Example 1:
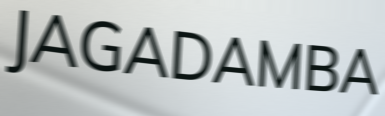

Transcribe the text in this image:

JAGADAMBA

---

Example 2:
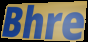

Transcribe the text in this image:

Bhre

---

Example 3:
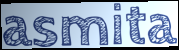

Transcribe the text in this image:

asmita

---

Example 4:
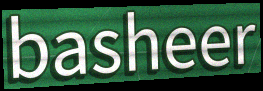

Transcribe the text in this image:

basheer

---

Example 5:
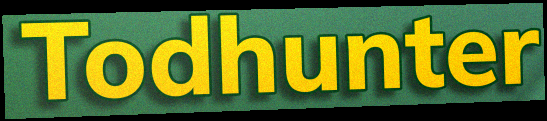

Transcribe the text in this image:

Todhunter